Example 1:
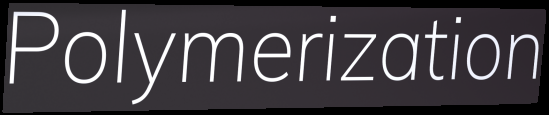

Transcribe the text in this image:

Polymerization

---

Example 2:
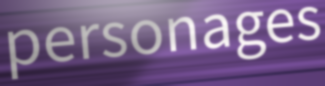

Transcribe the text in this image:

personages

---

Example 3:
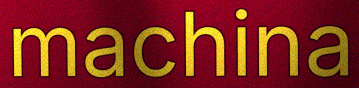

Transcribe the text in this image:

machina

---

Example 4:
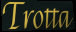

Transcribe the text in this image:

Trotta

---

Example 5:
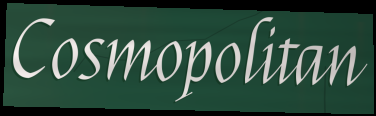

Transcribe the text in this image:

Cosmopolitan